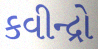
કવીન્દ્રો